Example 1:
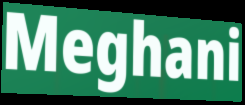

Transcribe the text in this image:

Meghani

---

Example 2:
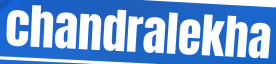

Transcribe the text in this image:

chandralekha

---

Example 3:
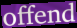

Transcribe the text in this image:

offend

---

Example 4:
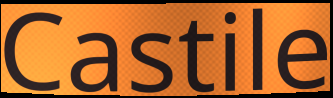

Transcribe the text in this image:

Castile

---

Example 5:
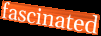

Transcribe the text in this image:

fascinated